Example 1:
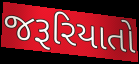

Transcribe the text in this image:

જરૂરિયાતો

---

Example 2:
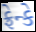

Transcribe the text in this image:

ફ્રેન્કે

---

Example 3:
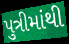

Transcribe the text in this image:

પુત્રીમાંથી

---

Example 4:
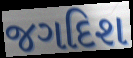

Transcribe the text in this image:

જગદિશ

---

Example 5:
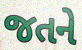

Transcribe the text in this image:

જતને